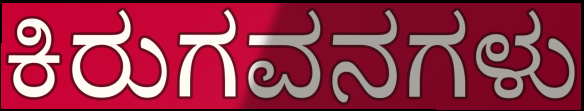
ಕಿರುಗವನಗಳು